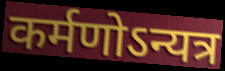
कर्मणोऽन्यत्र